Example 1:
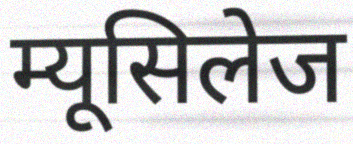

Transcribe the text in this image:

म्यूसिलेज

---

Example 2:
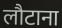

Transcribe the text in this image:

लौटाना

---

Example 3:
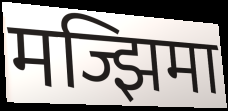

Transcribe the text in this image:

मज्झिमा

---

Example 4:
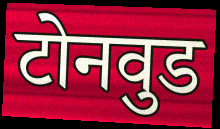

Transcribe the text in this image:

टोनवुड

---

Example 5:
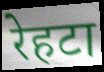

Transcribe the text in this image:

रेहटा